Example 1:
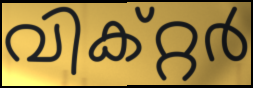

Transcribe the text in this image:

വിക്റ്റർ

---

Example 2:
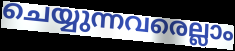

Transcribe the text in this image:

ചെയ്യുന്നവരെല്ലാം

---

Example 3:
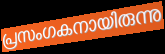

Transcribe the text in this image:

പ്രസംഗകനായിരുന്നു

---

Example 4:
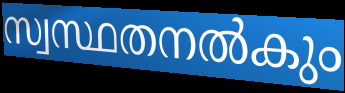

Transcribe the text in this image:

സ്വസ്ഥതനൽകും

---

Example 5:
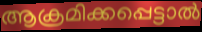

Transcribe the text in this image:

ആക്രമിക്കപ്പെട്ടാൽ